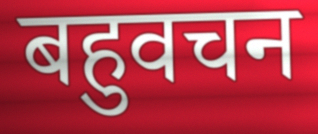
बहुवचन